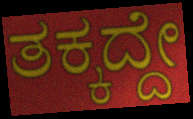
ತಕ್ಕದ್ದೇ